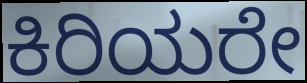
ಕಿರಿಯರೇ